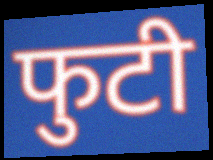
फुटी